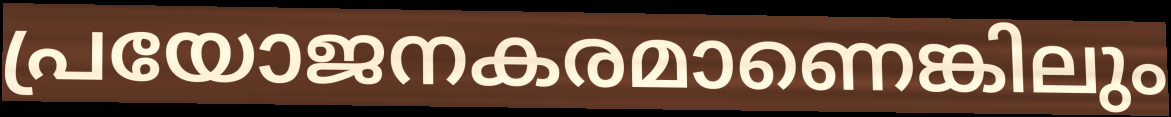
പ്രയോജനകരമാണെങ്കിലും